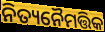
ନିତ୍ୟନୈମତ୍ତିକ